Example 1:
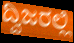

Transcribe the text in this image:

ದ್ವಿಜರಲ್ಲಿ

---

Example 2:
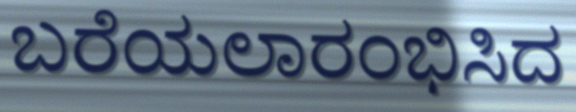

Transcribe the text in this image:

ಬರೆಯಲಾರಂಭಿಸಿದ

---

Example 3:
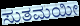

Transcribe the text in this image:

ಸುತಮಯೀ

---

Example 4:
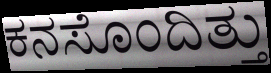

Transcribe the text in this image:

ಕನಸೊಂದಿತ್ತು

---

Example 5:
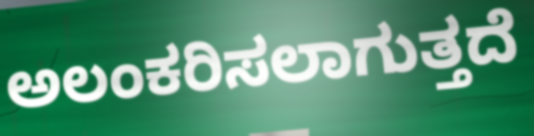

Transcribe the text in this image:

ಅಲಂಕರಿಸಲಾಗುತ್ತದೆ